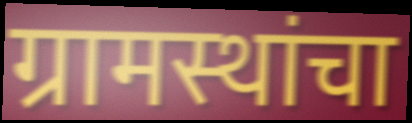
ग्रामस्थांचा